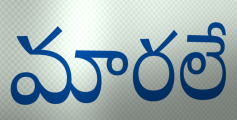
మారలే